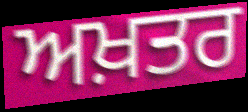
ਅਖ਼ਤਰ